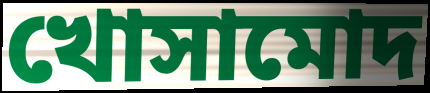
খোসামোদ